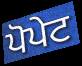
ਪੋਪੇਟ